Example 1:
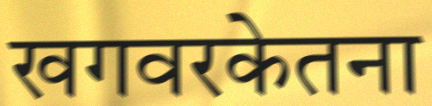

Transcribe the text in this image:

खगवरकेतना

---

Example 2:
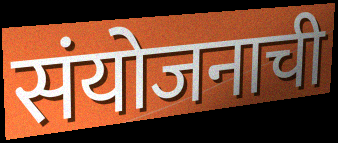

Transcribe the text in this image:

संयोजनाची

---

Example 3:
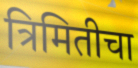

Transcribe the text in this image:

त्रिमितीचा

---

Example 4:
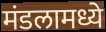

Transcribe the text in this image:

मंडलामध्ये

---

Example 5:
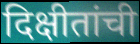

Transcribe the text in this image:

दिक्षीतांची